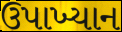
ઉપાખ્યાન